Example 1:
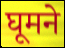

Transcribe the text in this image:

घूमने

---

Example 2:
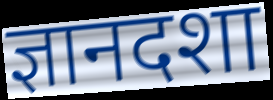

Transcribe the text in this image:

ज्ञानदशा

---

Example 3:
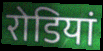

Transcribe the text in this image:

रोडियां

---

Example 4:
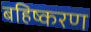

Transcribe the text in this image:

बहिष्करण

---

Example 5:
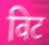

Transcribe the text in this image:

विट